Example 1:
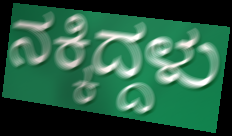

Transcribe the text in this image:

ನಕ್ಕಿದ್ದಳು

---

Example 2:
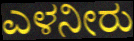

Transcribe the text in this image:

ಎಳನೀರು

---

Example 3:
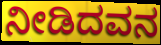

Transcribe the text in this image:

ನೀಡಿದವನ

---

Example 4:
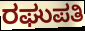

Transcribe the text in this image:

ರಘುಪತಿ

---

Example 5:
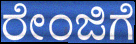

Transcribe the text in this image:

ರೇಂಜಿಗೆ